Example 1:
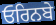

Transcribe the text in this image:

ਓਰਿਨਬੇ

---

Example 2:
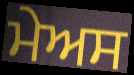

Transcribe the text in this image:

ਮੇਅਸ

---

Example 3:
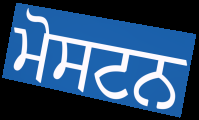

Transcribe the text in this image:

ਮੋਸਟਨ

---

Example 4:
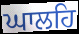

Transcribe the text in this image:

ਘਾਲਹਿ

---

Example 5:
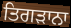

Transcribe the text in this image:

ਤਿਗੜਾਨਾ